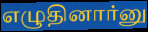
எழுதினார்னு